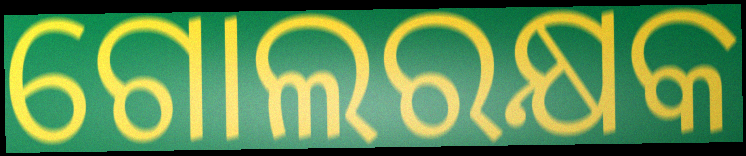
ଗୋଲରକ୍ଷକ